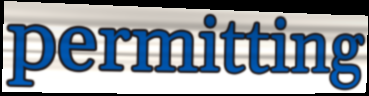
permitting